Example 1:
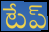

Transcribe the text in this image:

టేప్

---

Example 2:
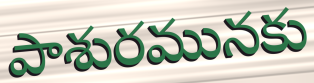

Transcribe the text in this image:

పాశురమునకు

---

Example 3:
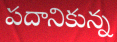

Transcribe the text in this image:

పదానికున్న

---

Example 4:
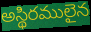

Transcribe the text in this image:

అస్థిరములైన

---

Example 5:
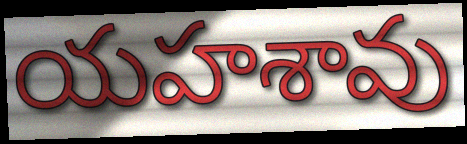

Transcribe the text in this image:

యహశావు